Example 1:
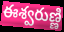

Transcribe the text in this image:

ఈశ్వరుణ్ణి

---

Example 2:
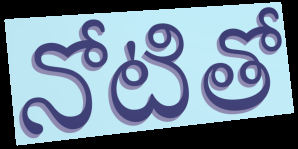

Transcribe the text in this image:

నోటితో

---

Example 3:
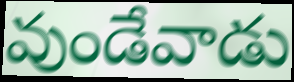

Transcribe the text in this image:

వుండేవాడు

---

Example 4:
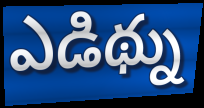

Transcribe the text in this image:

ఎడిథ్ను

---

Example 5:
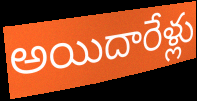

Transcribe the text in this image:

అయిదారేళ్లు